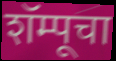
शॅम्पूचा